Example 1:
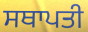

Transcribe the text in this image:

ਸਥਾਪਤੀ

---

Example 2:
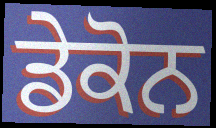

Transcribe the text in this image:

ਡੇਕੋਨ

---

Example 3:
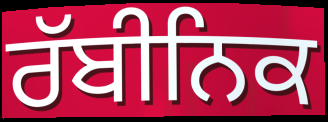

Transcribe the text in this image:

ਰੱਬੀਨਿਕ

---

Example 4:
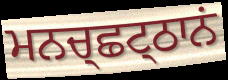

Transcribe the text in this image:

ਮਨਚ੍ਛਟ੍ਠਾਨਂ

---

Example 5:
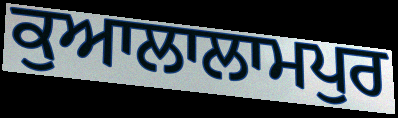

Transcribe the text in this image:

ਕੁਆਲਾਲਾਮਪੁਰ